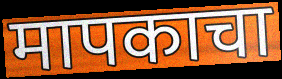
मापकाचा